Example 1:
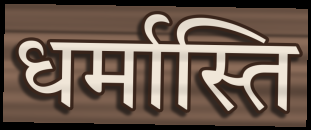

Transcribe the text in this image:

धर्मास्ति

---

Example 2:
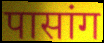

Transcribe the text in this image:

पासांग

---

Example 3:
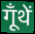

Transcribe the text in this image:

गूँथें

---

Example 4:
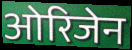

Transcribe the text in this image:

ओरिजेन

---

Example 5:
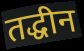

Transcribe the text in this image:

तद्धीन